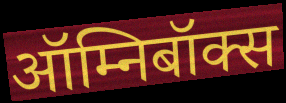
ऑम्निबॉक्स